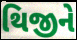
થિજીને